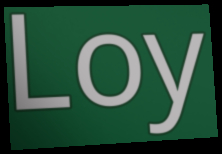
Loy